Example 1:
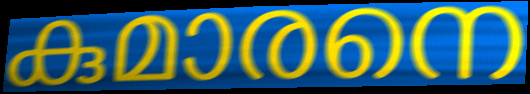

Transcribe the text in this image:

കുമാരനെ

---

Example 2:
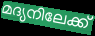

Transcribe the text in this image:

മദ്യനിലേക്ക്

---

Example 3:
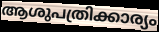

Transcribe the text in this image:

ആശുപത്രിക്കാര്യം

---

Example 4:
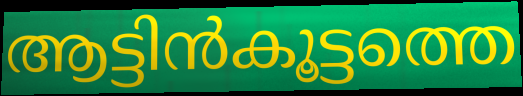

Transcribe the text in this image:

ആട്ടിൻകൂട്ടത്തെ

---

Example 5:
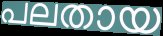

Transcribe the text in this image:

പലതായ